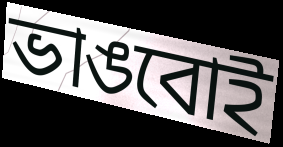
ভাঙবোই